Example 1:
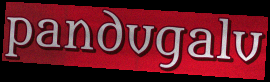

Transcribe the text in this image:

pandugalu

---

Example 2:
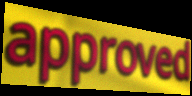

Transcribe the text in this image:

approved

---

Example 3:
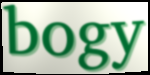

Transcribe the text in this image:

bogy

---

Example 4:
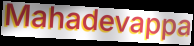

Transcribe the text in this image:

Mahadevappa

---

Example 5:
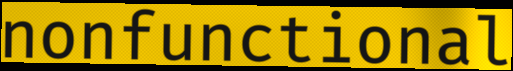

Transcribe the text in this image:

nonfunctional